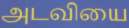
அடவியை